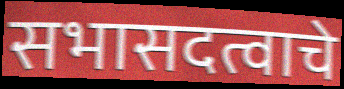
सभासदत्वाचे